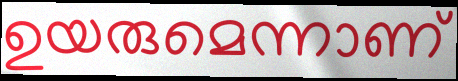
ഉയരുമെന്നാണ്